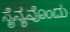
ಸೈನ್ಯವೊಂದು